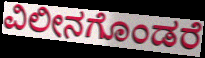
ವಿಲೀನಗೊಂಡರೆ